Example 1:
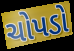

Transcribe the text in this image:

ચોપડો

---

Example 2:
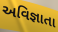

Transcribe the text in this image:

અવિજ્ઞાતા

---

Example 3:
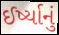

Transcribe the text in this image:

ઈર્ષ્યાનું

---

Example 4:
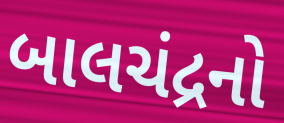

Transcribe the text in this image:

બાલચંદ્રનો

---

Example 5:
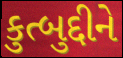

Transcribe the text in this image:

કુત્બુદ્દીને